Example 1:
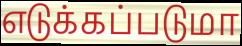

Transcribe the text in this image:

எடுக்கப்படுமா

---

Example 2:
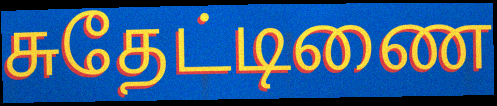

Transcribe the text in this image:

சுதேட்டிணை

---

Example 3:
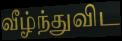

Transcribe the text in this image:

வீழ்ந்துவிட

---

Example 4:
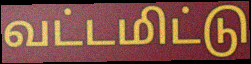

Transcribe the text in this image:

வட்டமிட்டு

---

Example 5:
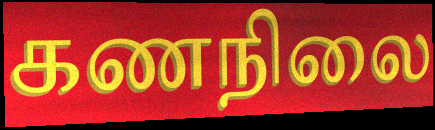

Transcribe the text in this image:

கணநிலை